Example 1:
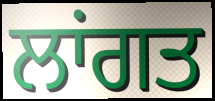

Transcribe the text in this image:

ਲਾਂਗਤ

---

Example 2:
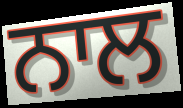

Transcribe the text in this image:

ਨਾਲ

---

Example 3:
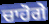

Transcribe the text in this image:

ਚਾਹੋਗੇ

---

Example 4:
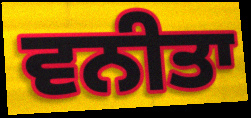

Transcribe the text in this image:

ਵਨੀਤਾ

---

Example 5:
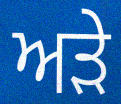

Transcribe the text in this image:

ਅੜੇ